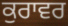
ਕੁਰਾਵਰ